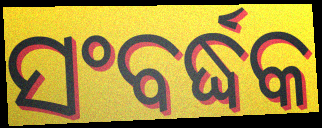
ସଂବର୍ଦ୍ଧକ